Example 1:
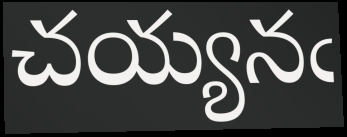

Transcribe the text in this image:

చయ్యనఁ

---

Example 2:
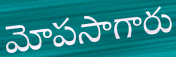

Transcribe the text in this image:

మోపసాగారు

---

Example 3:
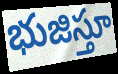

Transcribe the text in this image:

భుజిస్తూ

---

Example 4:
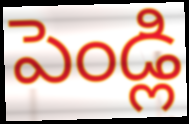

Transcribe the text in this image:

పెండ్లి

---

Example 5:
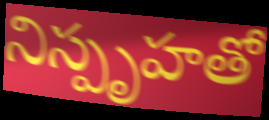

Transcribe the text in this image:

నిస్పృహతో